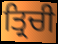
ਤ੍ਰਿਚੀ